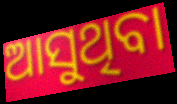
ଆସୁଥିବା